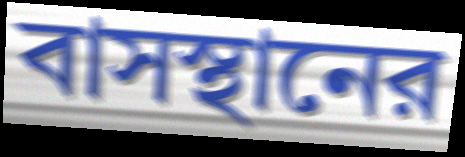
বাসস্থানের